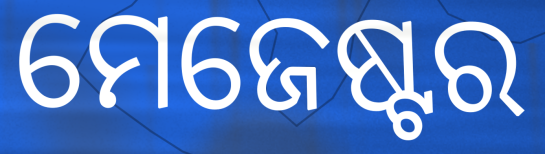
ମେଜେଷ୍ଟର